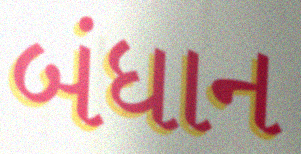
બંધાન